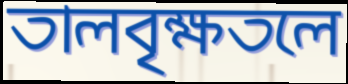
তালবৃক্ষতলে